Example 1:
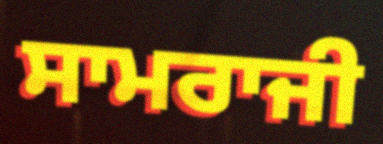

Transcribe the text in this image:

ਸਾਮਰਾਜੀ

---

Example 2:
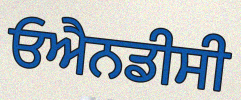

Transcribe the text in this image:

ਓਐਨਡੀਸੀ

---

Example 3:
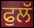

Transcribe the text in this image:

ਫੁਲੱ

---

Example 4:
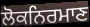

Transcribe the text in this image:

ਲੋਕਨਿਰਮਾਣ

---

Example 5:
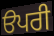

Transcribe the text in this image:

ੳਪਰੀ